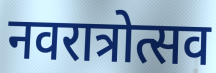
नवरात्रोत्सव